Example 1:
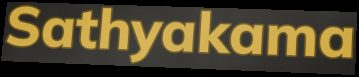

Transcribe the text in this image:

Sathyakama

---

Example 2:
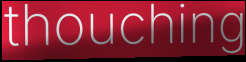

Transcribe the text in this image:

thouching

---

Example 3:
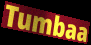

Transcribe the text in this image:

Tumbaa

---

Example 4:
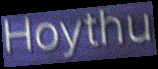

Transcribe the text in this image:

Hoythu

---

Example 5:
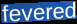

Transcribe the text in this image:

fevered